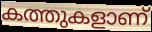
കത്തുകളാണ്